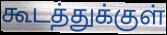
கூடத்துக்குள்